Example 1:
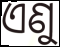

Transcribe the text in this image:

ଏଣୁ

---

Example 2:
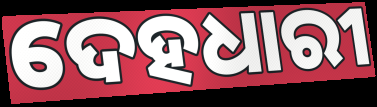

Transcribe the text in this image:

ଦେହଧାରୀ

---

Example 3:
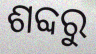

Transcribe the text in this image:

ଶବ୍ଦରୁ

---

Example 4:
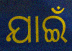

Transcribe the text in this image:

ଯାଇଁ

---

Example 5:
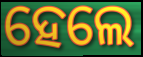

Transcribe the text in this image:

ହେଲେ